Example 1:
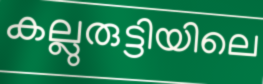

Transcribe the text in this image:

കല്ലുരുട്ടിയിലെ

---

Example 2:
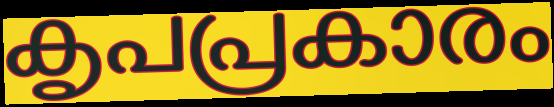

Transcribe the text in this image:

കൃപപ്രകാരം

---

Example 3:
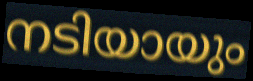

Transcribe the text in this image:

നടിയായും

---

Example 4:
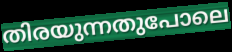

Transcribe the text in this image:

തിരയുന്നതുപോലെ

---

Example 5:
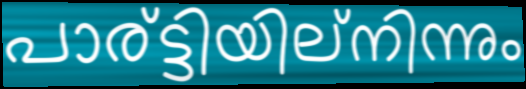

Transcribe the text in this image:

പാര്ട്ടിയില്നിന്നും